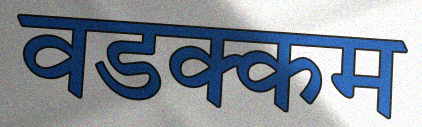
वडक्कम